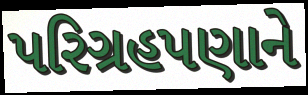
પરિગ્રહપણાને